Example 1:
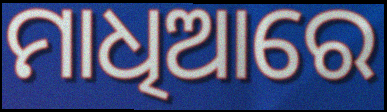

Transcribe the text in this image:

ମାଧିଆରେ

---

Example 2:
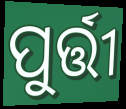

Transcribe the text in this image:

ପୁର୍ତ୍ତୀ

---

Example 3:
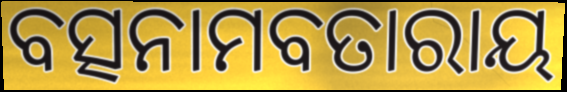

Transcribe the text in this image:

ବତ୍ସନାମବତାରାୟ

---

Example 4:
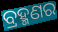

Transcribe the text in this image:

ବ୍ରହ୍ମଣର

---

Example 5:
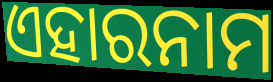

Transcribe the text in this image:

ଏହାରନାମ